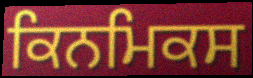
ਕਿਨਮਿਕਸ